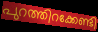
പുറത്തിറക്കേണ്ടി